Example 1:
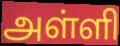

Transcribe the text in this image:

அள்ளி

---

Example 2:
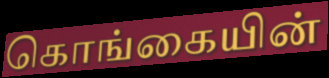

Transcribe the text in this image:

கொங்கையின்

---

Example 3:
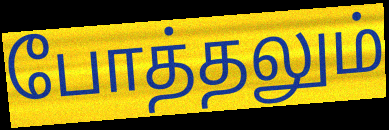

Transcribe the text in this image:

போத்தலும்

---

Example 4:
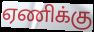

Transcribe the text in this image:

ஏணிக்கு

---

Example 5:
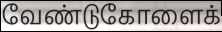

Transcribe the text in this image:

வேண்டுகோளைக்